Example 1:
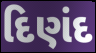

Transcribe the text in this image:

દિણંદ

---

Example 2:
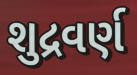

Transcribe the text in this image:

શુદ્રવર્ણ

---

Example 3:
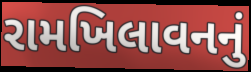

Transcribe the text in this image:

રામખિલાવનનું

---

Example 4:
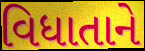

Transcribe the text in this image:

વિધાતાને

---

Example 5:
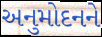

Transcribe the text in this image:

અનુમોદનને